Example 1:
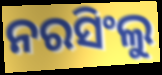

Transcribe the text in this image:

ନରସିଂଲୁ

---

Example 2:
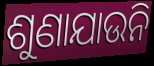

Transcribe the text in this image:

ଶୁଣାଯାଉନି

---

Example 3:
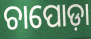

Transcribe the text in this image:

ଚାପୋଡ଼ା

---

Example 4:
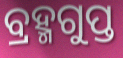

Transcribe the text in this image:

ବ୍ରହ୍ମଗୁପ୍ତ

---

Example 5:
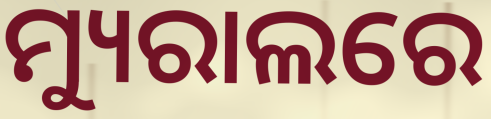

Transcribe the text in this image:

ମ୍ୟୁରାଲରେ